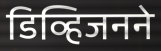
डिव्हिजनने